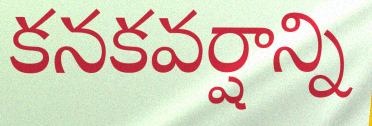
కనకవర్షాన్ని